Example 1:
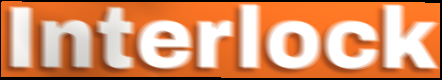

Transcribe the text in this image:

Interlock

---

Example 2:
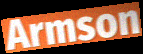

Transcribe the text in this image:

Armson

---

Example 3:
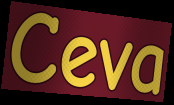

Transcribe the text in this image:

Ceva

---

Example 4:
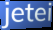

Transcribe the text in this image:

jetei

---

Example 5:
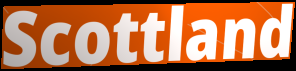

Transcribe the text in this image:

Scottland